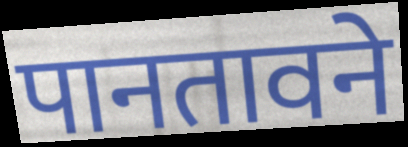
पानतावने